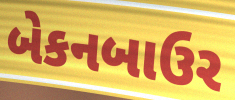
બેકનબાઉર